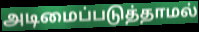
அடிமைப்படுத்தாமல்